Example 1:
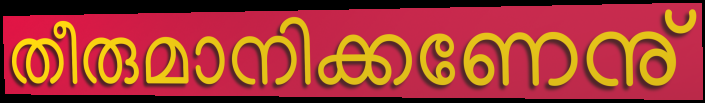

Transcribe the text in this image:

തീരുമാനിക്കണേനു്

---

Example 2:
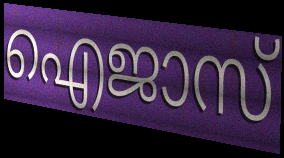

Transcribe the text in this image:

ഐജാസ്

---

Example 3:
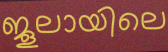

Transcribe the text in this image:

ജൂലായിലെ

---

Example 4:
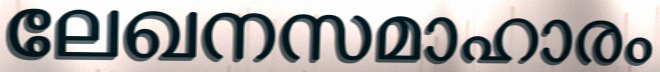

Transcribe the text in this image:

ലേഖനസമാഹാരം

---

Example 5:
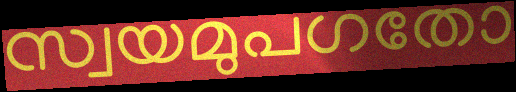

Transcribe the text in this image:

സ്വയമുപഗതോ